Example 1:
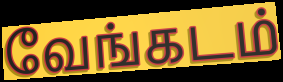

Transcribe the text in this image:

வேங்கடம்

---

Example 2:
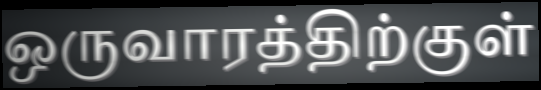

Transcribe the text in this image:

ஒருவாரத்திற்குள்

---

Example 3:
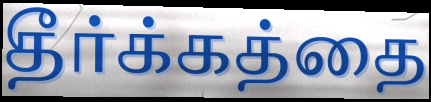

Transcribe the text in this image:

தீர்க்கத்தை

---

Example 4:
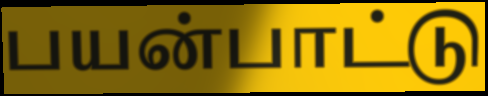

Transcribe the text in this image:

பயன்பாட்டு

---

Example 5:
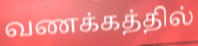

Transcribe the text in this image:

வணக்கத்தில்